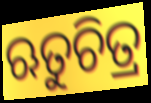
ଋତୁଚିତ୍ର